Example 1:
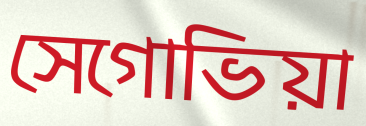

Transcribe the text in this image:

সেগোভিয়া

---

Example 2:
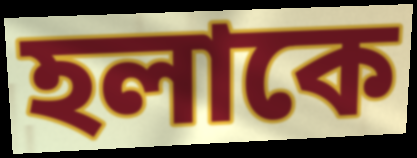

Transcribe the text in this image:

হলাকে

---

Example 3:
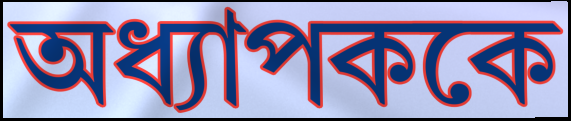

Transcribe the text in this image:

অধ্যাপককে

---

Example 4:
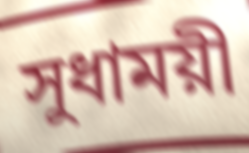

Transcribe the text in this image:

সুধাময়ী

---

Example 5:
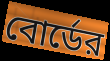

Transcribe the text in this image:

বোর্ডের